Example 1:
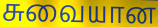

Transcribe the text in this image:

சுவையான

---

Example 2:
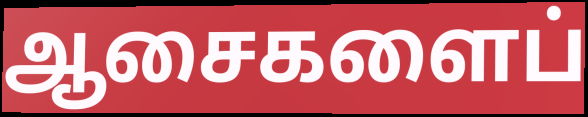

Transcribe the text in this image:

ஆசைகளைப்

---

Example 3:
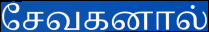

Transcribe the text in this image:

சேவகனால்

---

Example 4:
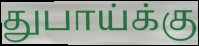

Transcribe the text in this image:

துபாய்க்கு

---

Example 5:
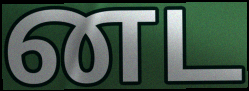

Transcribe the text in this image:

னட